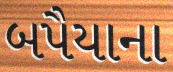
બપૈયાના